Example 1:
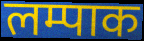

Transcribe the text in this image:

लम्पाक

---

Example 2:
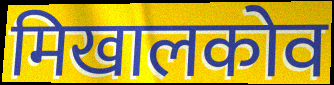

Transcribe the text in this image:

मिखालकोव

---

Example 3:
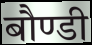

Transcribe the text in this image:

बौण्डी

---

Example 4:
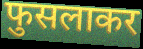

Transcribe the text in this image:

फुसलाकर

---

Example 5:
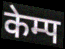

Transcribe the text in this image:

केम्प